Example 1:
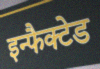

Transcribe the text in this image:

इन्फैक्टेड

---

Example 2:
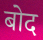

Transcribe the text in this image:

बोद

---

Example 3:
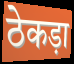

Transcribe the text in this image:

ठेकड़ा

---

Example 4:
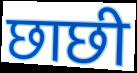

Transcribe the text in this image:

छाछी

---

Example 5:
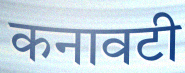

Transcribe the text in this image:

कनावटी